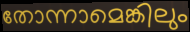
തോന്നാമെങ്കിലും